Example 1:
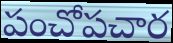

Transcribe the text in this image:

పంచోపచార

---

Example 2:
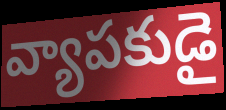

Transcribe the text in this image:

వ్యాపకుడై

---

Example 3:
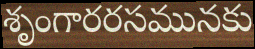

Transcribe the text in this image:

శృంగారరసమునకు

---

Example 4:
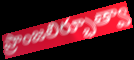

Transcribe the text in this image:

ప్రాంజలిర్భూత్వా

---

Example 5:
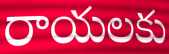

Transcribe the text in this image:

రాయలకు